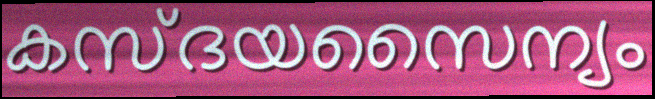
കസ്ദയസൈന്യം